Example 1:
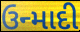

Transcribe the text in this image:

ઉન્માદી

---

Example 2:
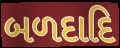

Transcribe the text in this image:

બળદાદિ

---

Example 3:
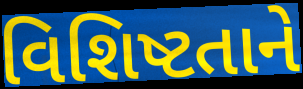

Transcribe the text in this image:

વિશિષ્ટતાને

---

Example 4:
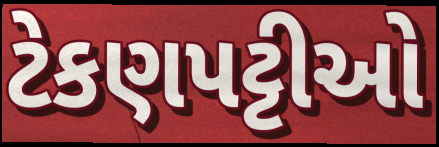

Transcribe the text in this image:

ટેકણપટ્ટીઓ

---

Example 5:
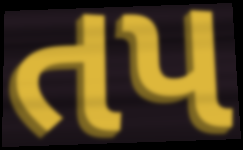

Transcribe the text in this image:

તપ